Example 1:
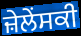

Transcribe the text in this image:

ਜ਼ੇਲੇਂਸਕੀ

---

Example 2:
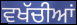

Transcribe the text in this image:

ਵਖੱਚੀਆਂ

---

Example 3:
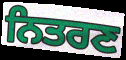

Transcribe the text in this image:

ਨਿਤਰਣ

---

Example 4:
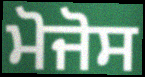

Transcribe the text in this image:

ਮੋਜੋਸ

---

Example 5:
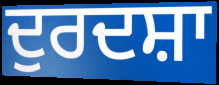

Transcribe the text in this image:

ਦੁਰਦਸ਼ਾ